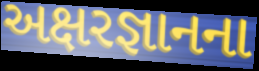
અક્ષરજ્ઞાનના